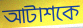
আটাশকে